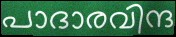
പാദാരവിന്ദ